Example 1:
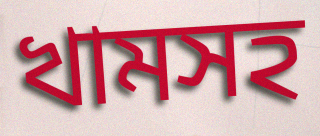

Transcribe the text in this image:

খামসহ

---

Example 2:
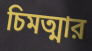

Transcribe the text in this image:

চিমত্মার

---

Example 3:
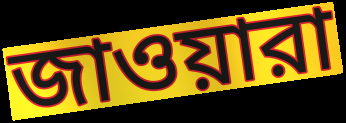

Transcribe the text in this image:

জাওয়ারা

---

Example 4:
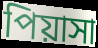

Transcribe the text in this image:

পিয়াসা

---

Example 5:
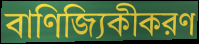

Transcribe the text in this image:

বাণিজ্যিকীকরণ